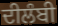
ਦੀਲੰਬੀ